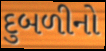
દુબળીનો